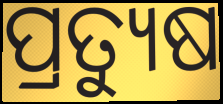
ପ୍ରତ୍ୟୁଷ